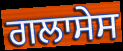
ਗਲਾਸੇਸ